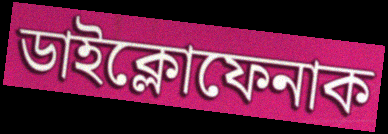
ডাইক্লোফেনাক